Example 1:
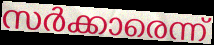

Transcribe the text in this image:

സർക്കാരെന്ന്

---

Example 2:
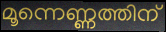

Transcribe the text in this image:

മൂന്നെണ്ണത്തിന്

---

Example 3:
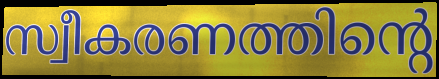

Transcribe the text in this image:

സ്വീകരണത്തിന്റെ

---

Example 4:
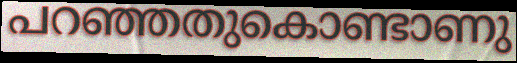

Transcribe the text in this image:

പറഞ്ഞതുകൊണ്ടാണു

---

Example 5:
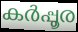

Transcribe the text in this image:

കർപ്പൂര